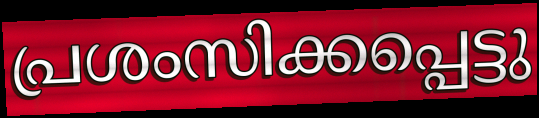
പ്രശംസിക്കപ്പെട്ടു